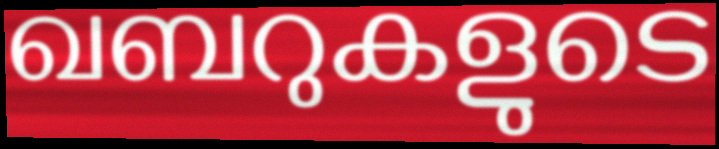
ഖബറുകളുടെ